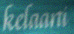
kelaarti